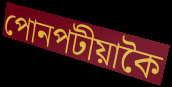
পোনপটীয়াকৈ